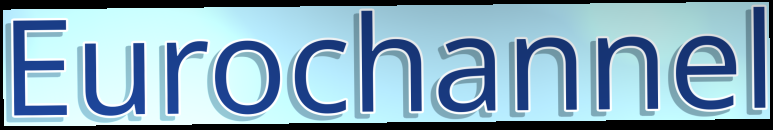
Eurochannel